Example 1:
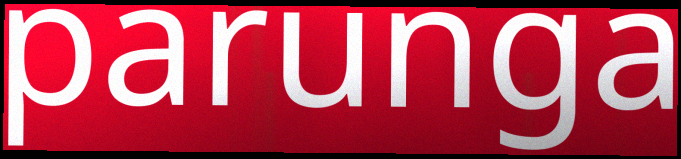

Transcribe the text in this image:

parunga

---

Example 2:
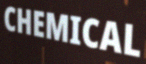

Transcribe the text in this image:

CHEMICAL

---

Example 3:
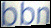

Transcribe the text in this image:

bbn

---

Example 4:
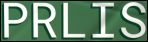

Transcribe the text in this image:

PRLIS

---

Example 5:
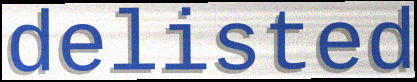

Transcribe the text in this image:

delisted